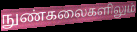
நுண்கலைகளிலும்